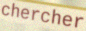
chercher